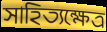
সাহিত্যক্ষেত্র